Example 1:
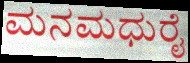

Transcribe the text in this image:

ಮನಮಧುರೈ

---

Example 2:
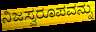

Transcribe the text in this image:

ನಿಜಸ್ವರೂಪವನ್ನು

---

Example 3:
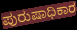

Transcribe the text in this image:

ಪುರುಷಾಧಿಕಾರ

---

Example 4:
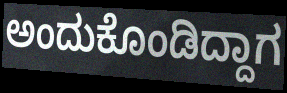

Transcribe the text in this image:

ಅಂದುಕೊಂಡಿದ್ದಾಗ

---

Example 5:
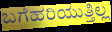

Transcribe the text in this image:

ಬಗೆಹರಿಯುತ್ತಿಲ್ಲ